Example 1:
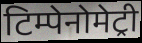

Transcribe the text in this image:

टिम्पेनोमेट्री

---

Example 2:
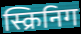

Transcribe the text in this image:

स्क्रिनिग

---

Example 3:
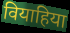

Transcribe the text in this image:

वियाहिया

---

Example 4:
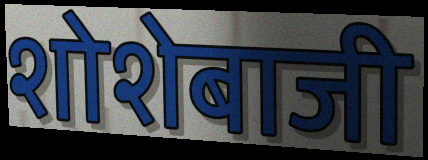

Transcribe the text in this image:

शोशेबाजी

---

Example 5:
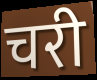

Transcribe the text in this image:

चरी